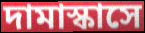
দামাস্কাসে